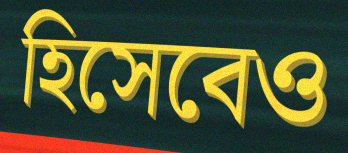
হিসেবেও